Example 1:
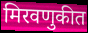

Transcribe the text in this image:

मिरवणुकीत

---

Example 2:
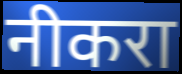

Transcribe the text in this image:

नीकरा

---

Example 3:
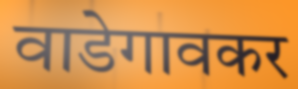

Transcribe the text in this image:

वाडेगावकर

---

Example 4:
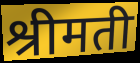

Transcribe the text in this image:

श्रीमती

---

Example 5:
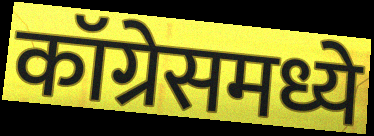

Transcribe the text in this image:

कॉग्रेसमध्ये